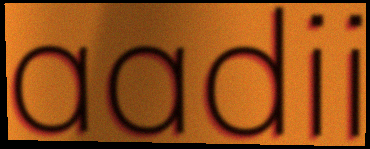
aadii